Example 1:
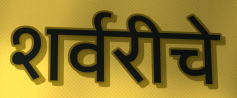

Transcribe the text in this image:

शर्वरीचे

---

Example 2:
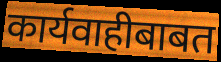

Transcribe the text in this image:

कार्यवाहीबाबत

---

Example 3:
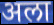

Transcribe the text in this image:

अला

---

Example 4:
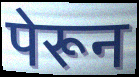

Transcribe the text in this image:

पेरून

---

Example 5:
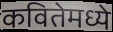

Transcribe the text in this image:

कवितेमध्ये